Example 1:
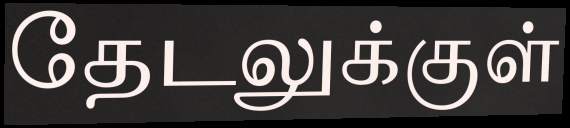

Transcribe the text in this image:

தேடலுக்குள்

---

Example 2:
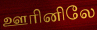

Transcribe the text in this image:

ஊரினிலே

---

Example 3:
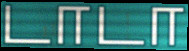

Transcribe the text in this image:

டாடா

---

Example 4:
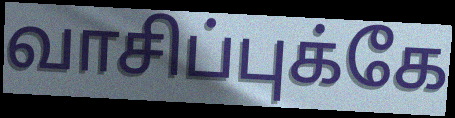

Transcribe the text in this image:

வாசிப்புக்கே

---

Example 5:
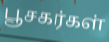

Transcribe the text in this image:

பூசகர்கள்